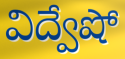
విద్వేషో